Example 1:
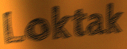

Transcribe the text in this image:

Loktak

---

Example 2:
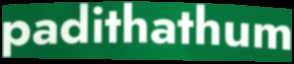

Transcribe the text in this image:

padithathum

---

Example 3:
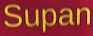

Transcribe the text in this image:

Supan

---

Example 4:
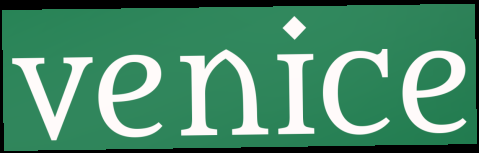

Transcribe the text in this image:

venice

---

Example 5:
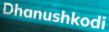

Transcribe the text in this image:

Dhanushkodi